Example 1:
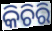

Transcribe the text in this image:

କିଚିରି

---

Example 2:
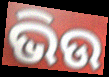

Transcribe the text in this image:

ଭିଉ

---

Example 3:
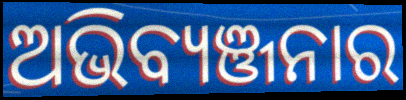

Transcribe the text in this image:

ଅଭିବ୍ୟଞ୍ଜନାର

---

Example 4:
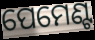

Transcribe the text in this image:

ପେମେଣ୍ଟ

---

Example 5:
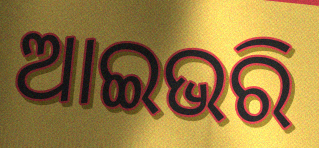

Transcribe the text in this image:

ଆଇଭରି